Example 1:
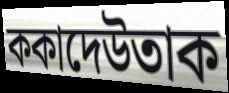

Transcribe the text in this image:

ককাদেউতাক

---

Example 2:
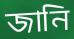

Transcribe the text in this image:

জানি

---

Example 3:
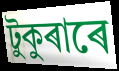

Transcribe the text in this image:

টুকুৰাৰে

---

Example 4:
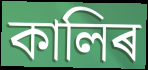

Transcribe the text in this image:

কালিৰ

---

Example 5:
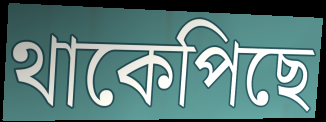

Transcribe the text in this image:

থাকেপিছে